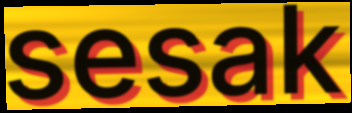
sesak